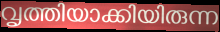
വൃത്തിയാക്കിയിരുന്ന